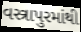
વસ્ત્રાપુરમાંથી